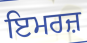
ਇਮਰਜ਼